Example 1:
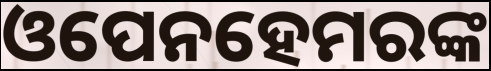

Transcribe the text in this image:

ଓପେନହେମରଙ୍କ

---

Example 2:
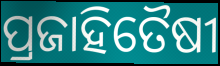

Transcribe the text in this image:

ପ୍ରଜାହିତୈଷୀ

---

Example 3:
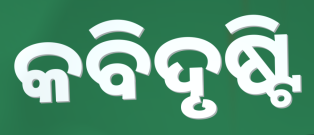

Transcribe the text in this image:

କବିଦୃଷ୍ଟି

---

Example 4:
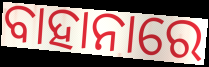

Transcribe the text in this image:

ବାହାନାରେ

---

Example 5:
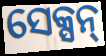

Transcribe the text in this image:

ସେକ୍ସନ୍